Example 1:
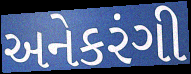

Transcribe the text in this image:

અનેકરંગી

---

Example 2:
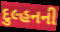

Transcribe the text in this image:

દુલ્હનની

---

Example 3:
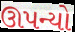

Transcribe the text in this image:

ઊપન્યો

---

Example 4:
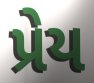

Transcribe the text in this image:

પ્રેય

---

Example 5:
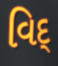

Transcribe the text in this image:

વિદ્